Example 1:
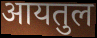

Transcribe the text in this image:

आयतुल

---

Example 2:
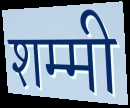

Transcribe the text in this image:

शम्मी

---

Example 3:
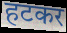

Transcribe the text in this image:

हटकर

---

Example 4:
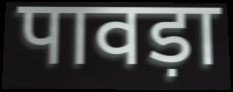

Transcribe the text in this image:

पावड़ा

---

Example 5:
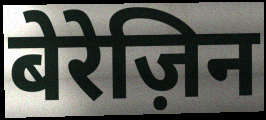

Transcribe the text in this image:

बेरेज़िन